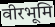
वीरभूमि